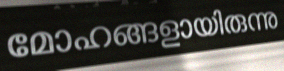
മോഹങ്ങളായിരുന്നു